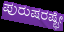
ಪುರುಷರಷ್ಟೇ